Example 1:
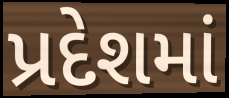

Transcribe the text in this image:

પ્રદેશમાં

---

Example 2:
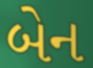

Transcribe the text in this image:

બેન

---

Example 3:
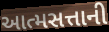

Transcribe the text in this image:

આત્મસત્તાની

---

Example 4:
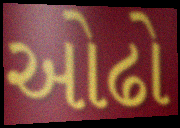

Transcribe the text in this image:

ઓઢો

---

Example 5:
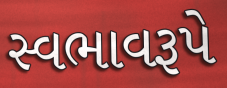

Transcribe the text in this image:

સ્વભાવરૂપે